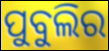
ପୁବୁଲିର